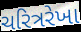
ચરિત્રરેખા